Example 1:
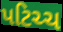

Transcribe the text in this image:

પટિચ્ચ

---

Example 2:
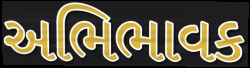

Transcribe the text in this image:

અભિભાવક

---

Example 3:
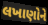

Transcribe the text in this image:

લખાણોને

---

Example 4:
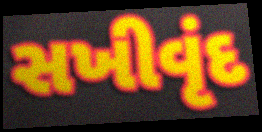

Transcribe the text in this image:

સખીવૃંદ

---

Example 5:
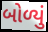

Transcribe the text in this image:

બોળ્યું